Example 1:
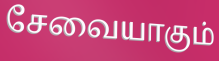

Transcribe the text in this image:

சேவையாகும்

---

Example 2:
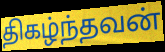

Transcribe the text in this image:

திகழ்ந்தவன்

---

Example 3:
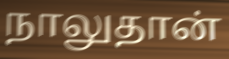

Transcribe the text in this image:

நாலுதான்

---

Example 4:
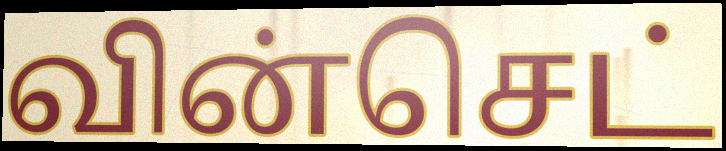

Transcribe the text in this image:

வின்செட்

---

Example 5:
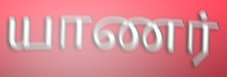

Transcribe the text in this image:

யாணர்